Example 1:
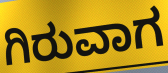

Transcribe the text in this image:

ಗಿರುವಾಗ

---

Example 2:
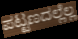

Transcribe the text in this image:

ಪಟ್ಟಣದಲ್ಲೆಲ್ಲ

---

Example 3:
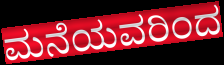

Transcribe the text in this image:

ಮನೆಯವರಿಂದ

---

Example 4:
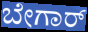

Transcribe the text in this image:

ಬೇಗಾರ್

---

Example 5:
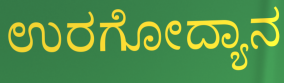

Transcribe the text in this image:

ಉರಗೋದ್ಯಾನ